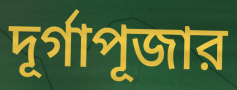
দূর্গাপূজার